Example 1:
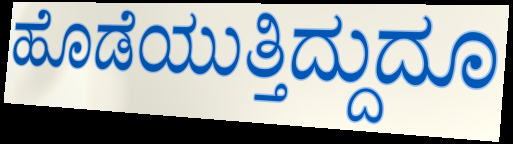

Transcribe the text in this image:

ಹೊಡೆಯುತ್ತಿದ್ದುದೂ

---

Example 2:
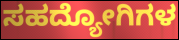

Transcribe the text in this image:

ಸಹದ್ಯೋಗಿಗಳ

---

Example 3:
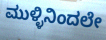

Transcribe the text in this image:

ಮುಳ್ಳಿನಿಂದಲೇ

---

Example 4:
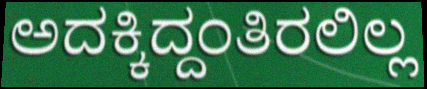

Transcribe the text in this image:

ಅದಕ್ಕಿದ್ದಂತಿರಲಿಲ್ಲ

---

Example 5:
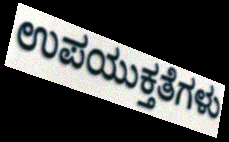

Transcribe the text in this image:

ಉಪಯುಕ್ತತೆಗಳು